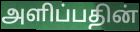
அளிப்பதின்